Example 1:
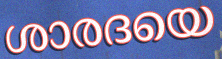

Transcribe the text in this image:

ശാരദയെ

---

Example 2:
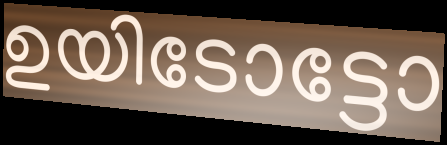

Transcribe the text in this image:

ഉയിടോട്ടോ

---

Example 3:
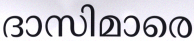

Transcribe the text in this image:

ദാസിമാരെ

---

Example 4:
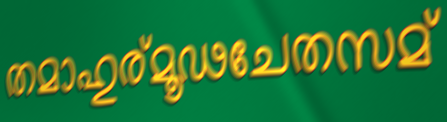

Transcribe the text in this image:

തമാഹുര്മൂഢചേതസമ്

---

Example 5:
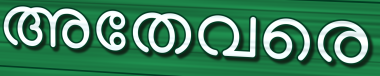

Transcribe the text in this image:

അതേവരെ